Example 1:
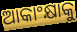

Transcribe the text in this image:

ଆକାଂକ୍ଷାକୁ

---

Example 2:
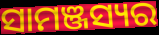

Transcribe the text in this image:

ସାମଞ୍ଜସ୍ୟର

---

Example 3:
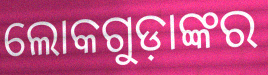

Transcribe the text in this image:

ଲୋକଗୁଡ଼ାଙ୍କର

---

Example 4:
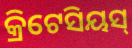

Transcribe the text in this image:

କ୍ରିଟେସିୟସ୍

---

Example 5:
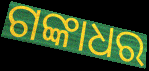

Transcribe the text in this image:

ଗଙ୍କାଧର